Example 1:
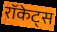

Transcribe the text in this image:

रॉकेट्स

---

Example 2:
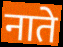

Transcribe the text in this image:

नाते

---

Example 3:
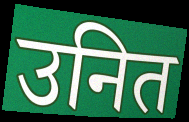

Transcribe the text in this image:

उनित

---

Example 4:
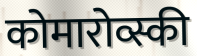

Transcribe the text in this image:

कोमारोव्स्की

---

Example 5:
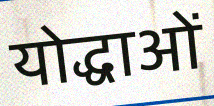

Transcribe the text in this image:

योद्धाओं